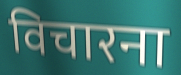
विचारना